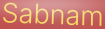
Sabnam